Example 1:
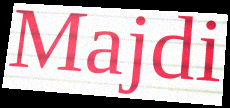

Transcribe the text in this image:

Majdi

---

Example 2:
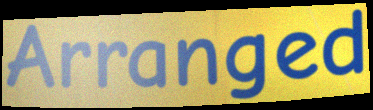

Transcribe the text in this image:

Arranged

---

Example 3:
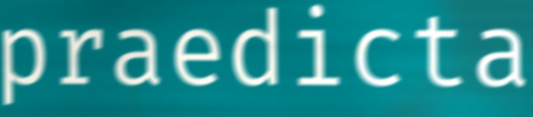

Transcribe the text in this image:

praedicta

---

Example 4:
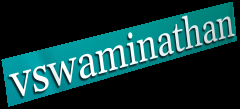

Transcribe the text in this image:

vswaminathan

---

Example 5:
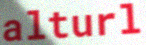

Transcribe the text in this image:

alturl